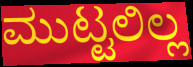
ಮುಟ್ಟಲಿಲ್ಲ